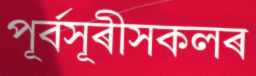
পূৰ্বসূৰীসকলৰ